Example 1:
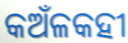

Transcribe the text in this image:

କଅଁଳକହୀ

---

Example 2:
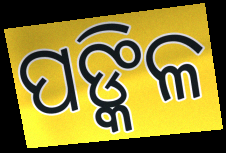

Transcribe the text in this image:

ପଙ୍କିଳ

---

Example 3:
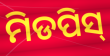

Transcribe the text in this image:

ମିଡପିସ୍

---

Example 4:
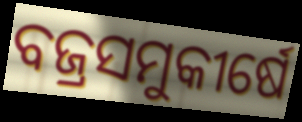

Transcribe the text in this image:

ବଜ୍ରସମୁକୀର୍ଷେ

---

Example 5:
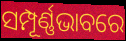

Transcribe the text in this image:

ସମ୍ପୂର୍ଣ୍ଣଭାବରେ